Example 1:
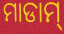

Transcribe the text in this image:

ମାଡାମ୍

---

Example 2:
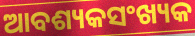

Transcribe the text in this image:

ଆବଶ୍ୟକସଂଖ୍ୟକ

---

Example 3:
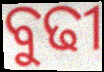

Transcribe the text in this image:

ବୁଢୀ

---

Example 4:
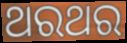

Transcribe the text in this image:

ଥରଥର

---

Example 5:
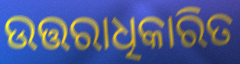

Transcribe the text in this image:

ଉତ୍ତରାଧିକାରିତ